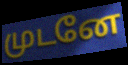
முடனே